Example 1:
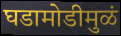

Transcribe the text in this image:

घडामोडीमुळं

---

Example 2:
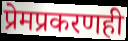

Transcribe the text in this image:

प्रेमप्रकरणही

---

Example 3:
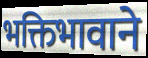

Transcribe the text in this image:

भक्तिभावाने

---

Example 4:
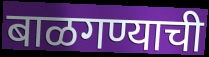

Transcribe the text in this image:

बाळगण्याची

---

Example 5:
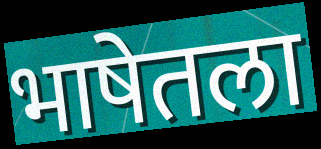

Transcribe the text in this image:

भाषेतला